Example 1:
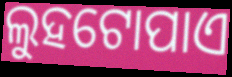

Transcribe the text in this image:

ଲୁହଟୋପାଏ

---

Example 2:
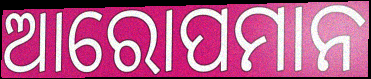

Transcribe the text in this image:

ଆରୋପମାନ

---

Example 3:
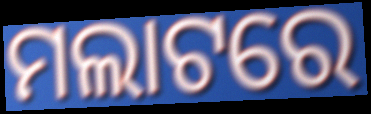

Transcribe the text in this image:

ମଲାଟରେ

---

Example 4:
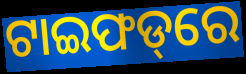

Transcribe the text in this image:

ଟାଇଫଡ୍‌ରେ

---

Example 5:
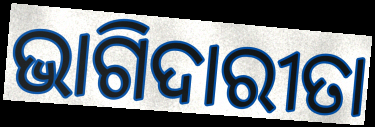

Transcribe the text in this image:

ଭାଗିଦାରୀତା